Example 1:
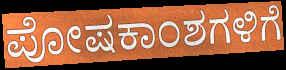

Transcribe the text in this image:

ಪೋಷಕಾಂಶಗಳಿಗೆ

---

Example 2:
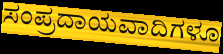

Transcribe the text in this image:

ಸಂಪ್ರದಾಯವಾದಿಗಳೂ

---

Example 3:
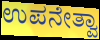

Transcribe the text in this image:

ಉಪನೇತ್ವಾ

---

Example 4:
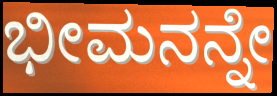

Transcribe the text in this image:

ಭೀಮನನ್ನೇ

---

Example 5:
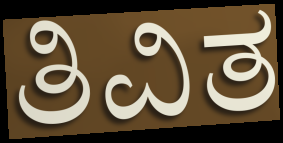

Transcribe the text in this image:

ತಿವಿತ